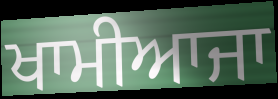
ਖਾਮੀਆਜਾ